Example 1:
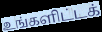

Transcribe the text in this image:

உங்களிட்டக்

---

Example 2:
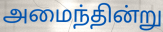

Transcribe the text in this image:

அமைந்தின்று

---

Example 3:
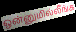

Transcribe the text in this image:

ஒன்னுமில்லீங்க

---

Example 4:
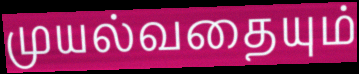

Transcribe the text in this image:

முயல்வதையும்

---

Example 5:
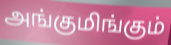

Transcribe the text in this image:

அங்குமிங்கும்